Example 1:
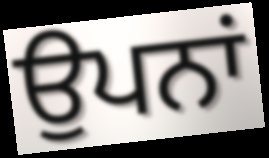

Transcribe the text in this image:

ਉਪਨਾਂ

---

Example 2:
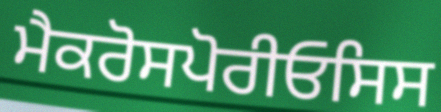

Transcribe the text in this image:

ਮੈਕਰੋਸਪੋਰੀਓਸਿਸ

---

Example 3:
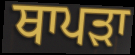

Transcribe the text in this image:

ਥਾਪੜਾ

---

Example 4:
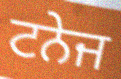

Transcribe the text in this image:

ਟਨੇਜ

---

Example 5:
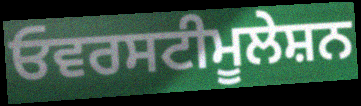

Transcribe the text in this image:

ਓਵਰਸਟੀਮੂਲੇਸ਼ਨ